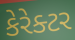
કેરેક્ટર